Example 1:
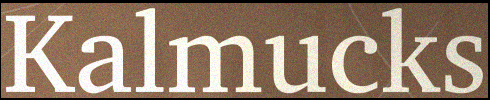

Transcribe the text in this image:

Kalmucks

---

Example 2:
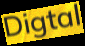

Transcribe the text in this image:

Digtal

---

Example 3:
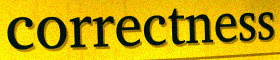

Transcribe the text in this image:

correctness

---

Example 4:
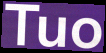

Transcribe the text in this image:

Tuo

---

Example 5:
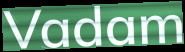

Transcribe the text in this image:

Vadam